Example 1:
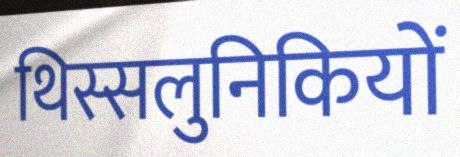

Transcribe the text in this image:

थिस्सलुनिकियों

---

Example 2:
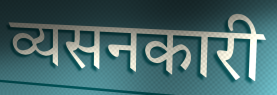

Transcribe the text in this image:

व्यसनकारी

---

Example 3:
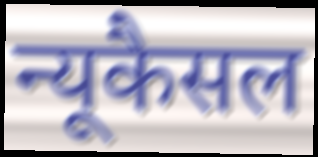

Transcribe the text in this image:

न्यूकैसल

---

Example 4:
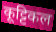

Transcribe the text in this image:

कूट्टिकल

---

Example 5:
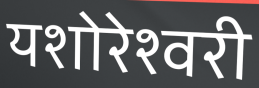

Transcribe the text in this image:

यशोरेश्वरी